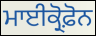
ਮਾਈਕ੍ਰੋਫ਼ੋਨ